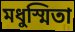
মধুস্মিতা